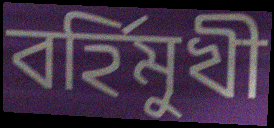
বর্হিমুখী